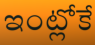
ఇంట్లోకే